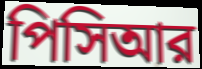
পিসিআর